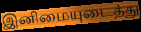
இனிமையுடைத்து